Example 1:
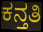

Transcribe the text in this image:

ಕನ್ತತಿ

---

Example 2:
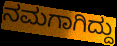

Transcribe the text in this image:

ನಮಗಾಗಿದ್ದು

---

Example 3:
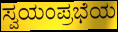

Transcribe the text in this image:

ಸ್ವಯಂಪ್ರಭೆಯ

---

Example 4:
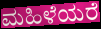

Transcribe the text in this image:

ಮಹಿಳೆಯರೆ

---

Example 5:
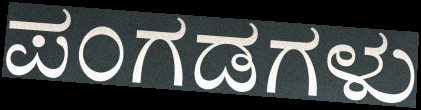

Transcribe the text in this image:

ಪಂಗಡಗಳು